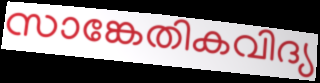
സാങ്കേതികവിദ്യ